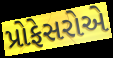
પ્રોફેસરોએ